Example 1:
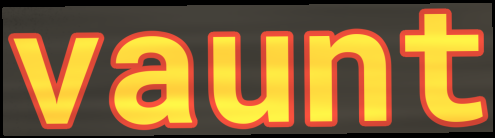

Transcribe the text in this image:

vaunt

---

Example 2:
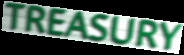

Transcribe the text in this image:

TREASURY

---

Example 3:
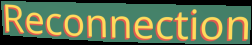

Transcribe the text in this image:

Reconnection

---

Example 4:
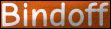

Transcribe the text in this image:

Bindoff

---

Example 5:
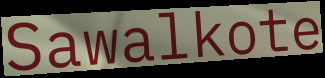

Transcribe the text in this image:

Sawalkote